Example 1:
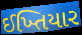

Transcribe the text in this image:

ઈખ્તિયાર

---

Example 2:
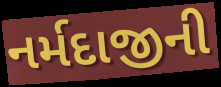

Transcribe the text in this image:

નર્મદાજીની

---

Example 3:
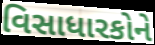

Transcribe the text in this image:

વિસાધારકોને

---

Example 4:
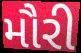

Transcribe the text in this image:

મૌરી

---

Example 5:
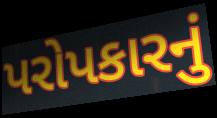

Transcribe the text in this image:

પરોપકારનું